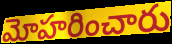
మోహరించారు